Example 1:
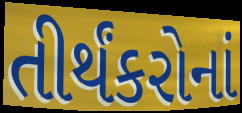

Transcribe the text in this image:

તીર્થંકરોનાં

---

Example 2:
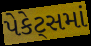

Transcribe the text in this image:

પેકેટ્સમાં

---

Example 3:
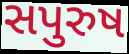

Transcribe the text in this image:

સપુરુષ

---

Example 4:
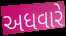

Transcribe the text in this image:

અધવારે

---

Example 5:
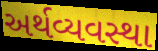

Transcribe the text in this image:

અર્થવ્યવસ્થા